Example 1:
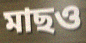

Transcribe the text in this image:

মাছও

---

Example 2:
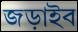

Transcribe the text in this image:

জড়াইব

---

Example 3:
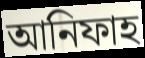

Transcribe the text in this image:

আনিফাহ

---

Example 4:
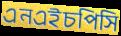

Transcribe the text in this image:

এনএইচপিসি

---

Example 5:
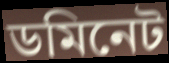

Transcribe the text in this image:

ডমিনেট